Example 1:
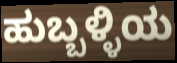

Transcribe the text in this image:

ಹುಬ್ಬಳ್ಳಿಯ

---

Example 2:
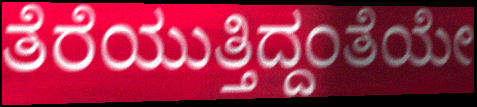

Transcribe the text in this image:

ತೆರೆಯುತ್ತಿದ್ದಂತೆಯೇ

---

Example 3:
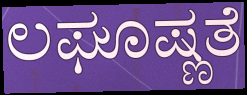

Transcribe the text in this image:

ಲಘೂಷ್ಣತೆ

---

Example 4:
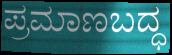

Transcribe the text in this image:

ಪ್ರಮಾಣಬದ್ಧ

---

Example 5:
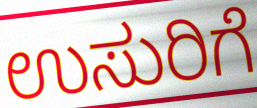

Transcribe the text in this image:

ಉಸುರಿಗೆ